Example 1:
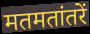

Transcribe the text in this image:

मतमतांतरें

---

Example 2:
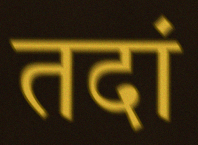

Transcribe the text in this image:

तदां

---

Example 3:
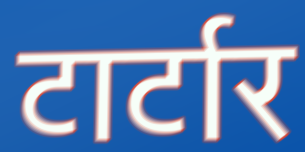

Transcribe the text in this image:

टार्टार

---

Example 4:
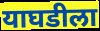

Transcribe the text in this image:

याघडीला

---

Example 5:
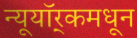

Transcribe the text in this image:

न्यूयॉर्कमधून